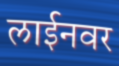
लाईनवर